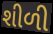
શીળી